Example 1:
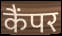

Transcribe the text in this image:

कैंपर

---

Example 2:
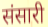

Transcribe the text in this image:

संसारी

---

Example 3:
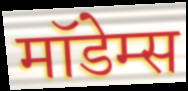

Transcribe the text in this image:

मॉडेम्स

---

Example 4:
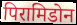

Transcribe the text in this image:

पिरामिडोन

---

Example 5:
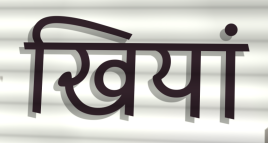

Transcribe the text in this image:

खियां